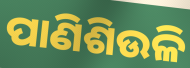
ପାଣିଶିଉଳି